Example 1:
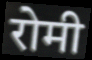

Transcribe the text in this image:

रोमी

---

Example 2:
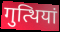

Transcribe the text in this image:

गुत्थियां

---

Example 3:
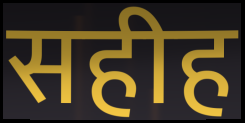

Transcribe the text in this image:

सहीह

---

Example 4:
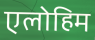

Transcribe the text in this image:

एलोहिम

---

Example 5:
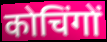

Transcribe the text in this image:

कोचिंगों